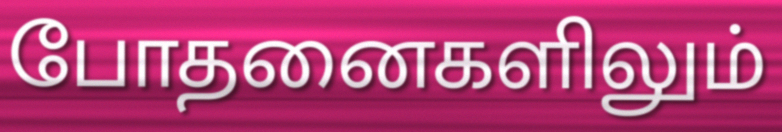
போதனைகளிலும்